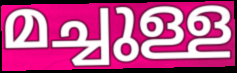
മച്ചുള്ള